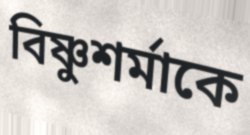
বিষ্ণুশর্মাকে